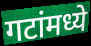
गटांमध्ये